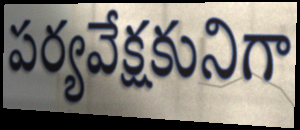
పర్యవేక్షకునిగా